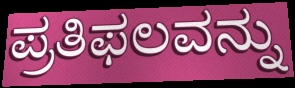
ಪ್ರತಿಫಲವನ್ನು